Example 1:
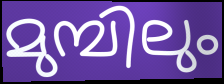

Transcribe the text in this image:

മുമ്പിലും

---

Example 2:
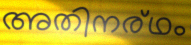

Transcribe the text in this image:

അതിനര്ഥം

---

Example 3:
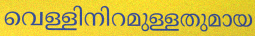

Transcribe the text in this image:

വെള്ളിനിറമുള്ളതുമായ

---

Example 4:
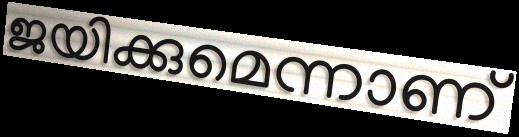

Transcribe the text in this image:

ജയിക്കുമെന്നാണ്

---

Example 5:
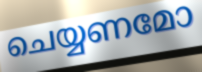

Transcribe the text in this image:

ചെയ്യണമോ